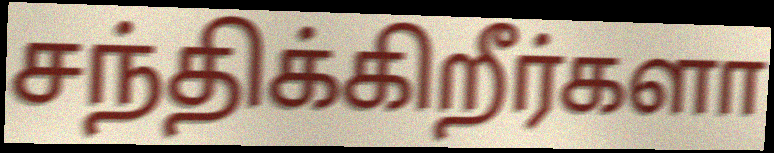
சந்திக்கிறீர்களா